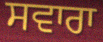
ਸਵਾਰਾ